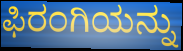
ಫಿರಂಗಿಯನ್ನು